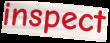
inspect